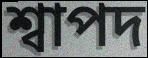
শ্বাপদ